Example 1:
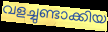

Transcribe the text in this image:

വളച്ചുണ്ടാക്കിയ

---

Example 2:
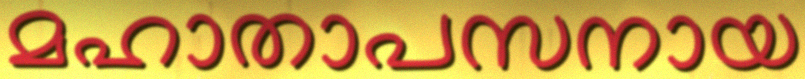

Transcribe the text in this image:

മഹാതാപസനായ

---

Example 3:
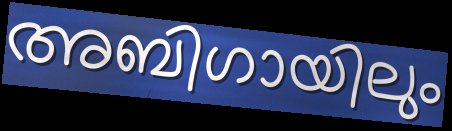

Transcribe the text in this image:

അബിഗായിലും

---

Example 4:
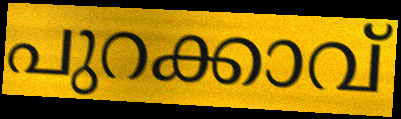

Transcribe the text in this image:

പുറക്കാവ്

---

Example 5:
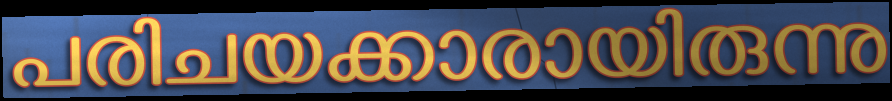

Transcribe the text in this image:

പരിചയക്കാരായിരുന്നു